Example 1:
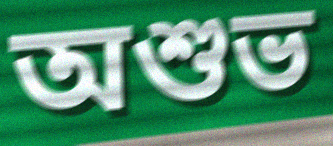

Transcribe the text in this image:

অশুভ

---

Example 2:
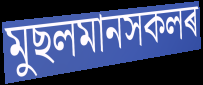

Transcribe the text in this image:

মুছলমানসকলৰ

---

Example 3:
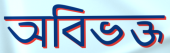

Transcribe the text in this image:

অবিভক্ত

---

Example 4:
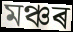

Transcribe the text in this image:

মঞ্চৰ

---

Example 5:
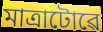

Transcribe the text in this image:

মাত্ৰাটোৱে